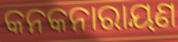
କନକନାରାୟଣ